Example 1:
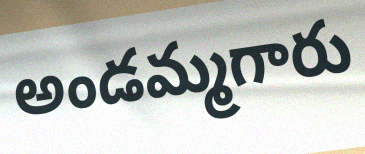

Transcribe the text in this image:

అండమ్మగారు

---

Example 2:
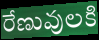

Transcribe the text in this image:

రేణువులకి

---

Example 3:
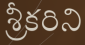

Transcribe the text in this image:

శ్రీకరిని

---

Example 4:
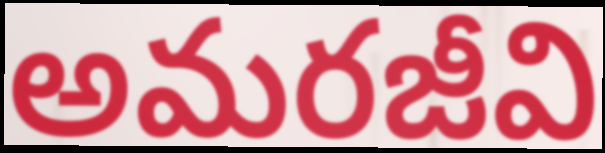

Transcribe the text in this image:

అమరజీవి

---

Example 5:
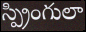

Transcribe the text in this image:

స్ప్రింగులా